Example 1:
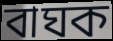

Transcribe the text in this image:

বাঘক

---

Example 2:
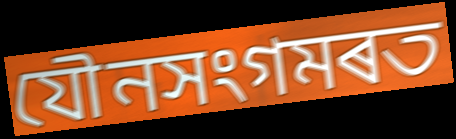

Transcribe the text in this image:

যৌনসংগমৰত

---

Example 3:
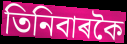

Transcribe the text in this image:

তিনিবাৰকৈ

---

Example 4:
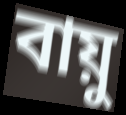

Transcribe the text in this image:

বায়ু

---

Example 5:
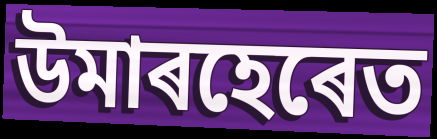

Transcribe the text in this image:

উমাৰহেৰেত